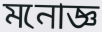
মনোজ্ঞ